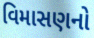
વિમાસણનો